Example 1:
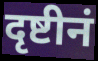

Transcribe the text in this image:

दृष्टीनं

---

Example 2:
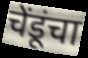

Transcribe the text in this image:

चेंडूंचा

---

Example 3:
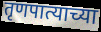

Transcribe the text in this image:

तृणपात्याच्या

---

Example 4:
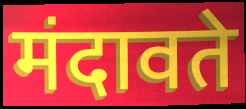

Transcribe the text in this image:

मंदावते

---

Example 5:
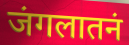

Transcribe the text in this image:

जंगलातनं